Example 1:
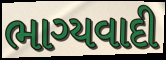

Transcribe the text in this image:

ભાગ્યવાદી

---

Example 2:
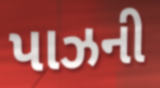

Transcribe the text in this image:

પાઝની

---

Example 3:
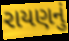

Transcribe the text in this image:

રાયણનું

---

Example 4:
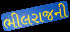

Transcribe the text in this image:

ભીલરાજની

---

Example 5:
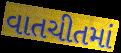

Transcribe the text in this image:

વાતચીતમાં